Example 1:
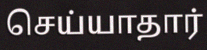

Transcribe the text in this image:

செய்யாதார்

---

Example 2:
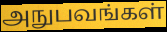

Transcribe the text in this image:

அநுபவங்கள்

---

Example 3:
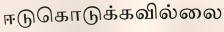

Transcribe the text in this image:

ஈடுகொடுக்கவில்லை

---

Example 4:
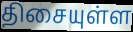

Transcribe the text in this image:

திசையுள்ள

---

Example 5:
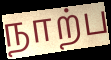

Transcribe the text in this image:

நாற்ப